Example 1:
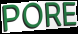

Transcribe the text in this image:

PORE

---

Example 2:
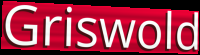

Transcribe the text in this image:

Griswold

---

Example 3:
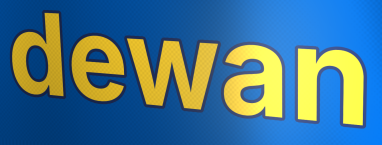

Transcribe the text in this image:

dewan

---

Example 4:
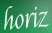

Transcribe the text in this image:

horiz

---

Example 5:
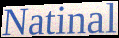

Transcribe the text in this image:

Natinal